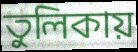
তুলিকায়